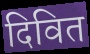
दिवित